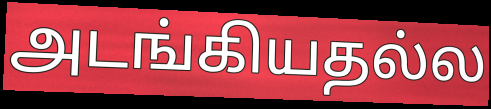
அடங்கியதல்ல